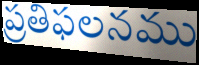
ప్రతిఫలనము